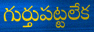
గుర్తుపట్టలేక